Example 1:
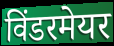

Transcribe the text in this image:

विंडरमेयर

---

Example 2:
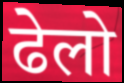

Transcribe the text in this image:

ढेलो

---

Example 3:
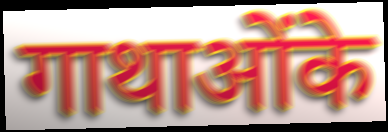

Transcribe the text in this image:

गाथाओंके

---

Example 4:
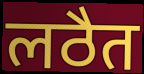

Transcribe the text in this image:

लठैत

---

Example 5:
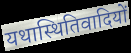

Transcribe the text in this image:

यथास्थितिवादियों